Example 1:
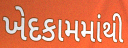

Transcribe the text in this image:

ખેદકામમાંથી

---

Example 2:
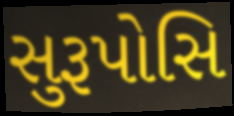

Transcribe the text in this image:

સુરૂપોસિ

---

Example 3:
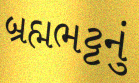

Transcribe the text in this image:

બ્રહ્મભટ્ટનું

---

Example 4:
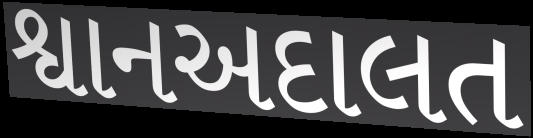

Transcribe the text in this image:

શ્વાનઅદાલત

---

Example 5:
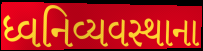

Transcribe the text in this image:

ધ્વનિવ્યવસ્થાના